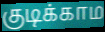
குடிக்காம